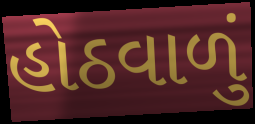
હોઠવાળું